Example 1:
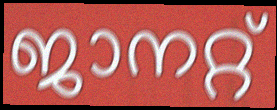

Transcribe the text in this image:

ജാനറ്റ്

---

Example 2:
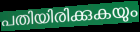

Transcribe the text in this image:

പതിയിരിക്കുകയും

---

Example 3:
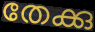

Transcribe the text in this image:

തേക്കു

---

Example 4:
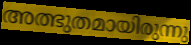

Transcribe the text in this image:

അത്ഭുതമായിരുന്നു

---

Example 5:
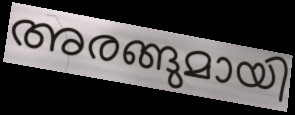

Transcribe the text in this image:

അരങ്ങുമായി